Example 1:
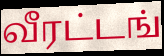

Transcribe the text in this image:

வீரட்டங்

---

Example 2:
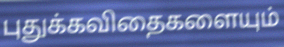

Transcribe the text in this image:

புதுக்கவிதைகளையும்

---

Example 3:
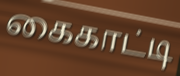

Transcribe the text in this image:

கைகாட்டி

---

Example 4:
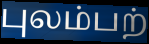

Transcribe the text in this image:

புலம்பற்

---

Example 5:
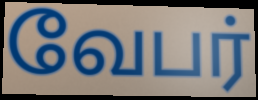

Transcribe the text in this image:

வேபர்